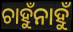
ଚାହୁଁନାହୁଁ